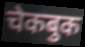
चेकबुक